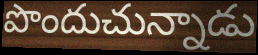
పొందుచున్నాడు